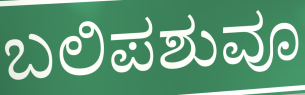
ಬಲಿಪಶುವೂ